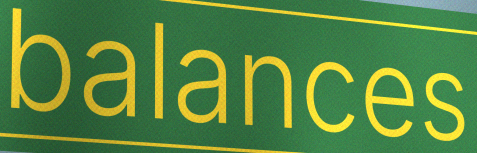
balances